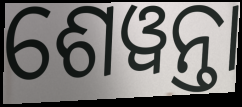
ଶେୱନ୍ତା